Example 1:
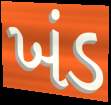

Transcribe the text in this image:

ખંડ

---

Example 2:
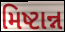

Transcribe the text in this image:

મિષ્ટાન્ન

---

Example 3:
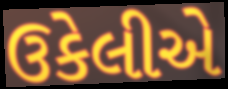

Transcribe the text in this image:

ઉકેલીએ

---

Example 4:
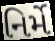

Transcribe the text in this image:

નિર્મે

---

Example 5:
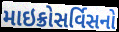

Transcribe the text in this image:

માઇક્રોસર્વિસનો